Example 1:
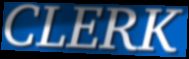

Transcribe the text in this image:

CLERK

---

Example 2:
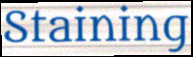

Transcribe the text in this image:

Staining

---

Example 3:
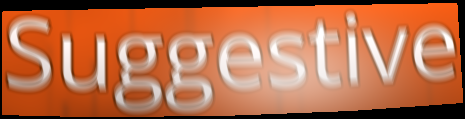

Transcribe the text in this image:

Suggestive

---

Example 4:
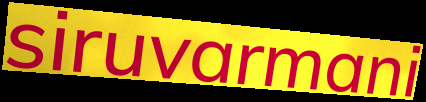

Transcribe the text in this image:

siruvarmani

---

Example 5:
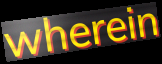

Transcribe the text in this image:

wherein